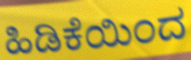
ಹಿಡಿಕೆಯಿಂದ